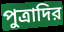
পুত্রাদির